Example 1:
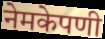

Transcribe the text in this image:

नेमकेपणी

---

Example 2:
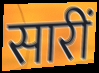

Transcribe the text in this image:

सारीं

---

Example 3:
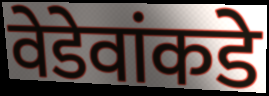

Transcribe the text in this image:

वेडेवांकडे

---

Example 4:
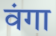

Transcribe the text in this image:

वंगा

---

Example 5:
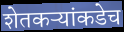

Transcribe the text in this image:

शेतकऱ्यांकडेच